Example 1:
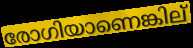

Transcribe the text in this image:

രോഗിയാണെങ്കില്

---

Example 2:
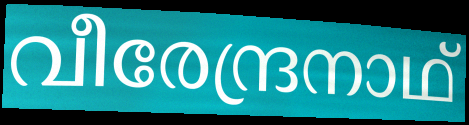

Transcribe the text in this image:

വീരേന്ദ്രനാഥ്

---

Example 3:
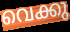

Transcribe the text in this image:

വെക്കു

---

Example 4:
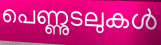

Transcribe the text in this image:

പെണ്ണുടലുകൾ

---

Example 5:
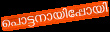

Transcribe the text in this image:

പൊട്ടനായിപ്പോയി